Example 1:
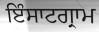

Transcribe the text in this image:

ਇੰਸਾਟਗ੍ਰਾਮ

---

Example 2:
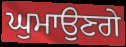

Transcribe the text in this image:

ਘੁਮਾਉਣਗੇ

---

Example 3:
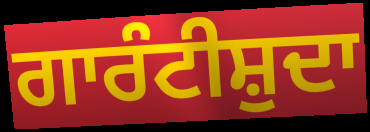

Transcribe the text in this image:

ਗਾਰੰਟੀਸ਼ੁਦਾ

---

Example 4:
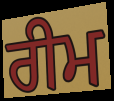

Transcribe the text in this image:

ਰੀਮ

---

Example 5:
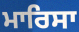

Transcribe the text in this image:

ਮਾਰਿਸਾ